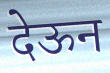
देऊन